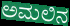
ಅಮಲಿನ